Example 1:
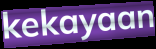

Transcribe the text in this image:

kekayaan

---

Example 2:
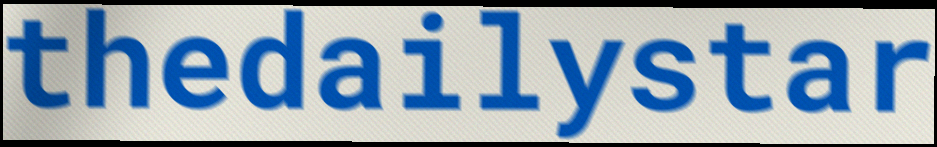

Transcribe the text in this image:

thedailystar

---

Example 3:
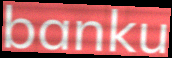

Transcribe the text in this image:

banku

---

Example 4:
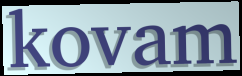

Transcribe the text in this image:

kovam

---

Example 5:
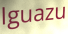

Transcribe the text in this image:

Iguazu